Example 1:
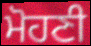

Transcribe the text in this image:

ਮੋਹਣੀ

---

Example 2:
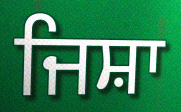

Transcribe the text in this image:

ਜਿਸ਼ਾ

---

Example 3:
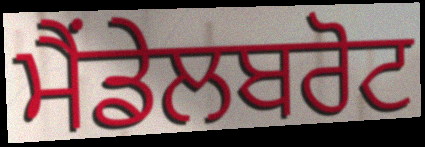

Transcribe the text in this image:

ਮੈਂਡੇਲਬਰੋਟ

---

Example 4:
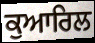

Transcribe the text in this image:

ਕੁਆਰਿਲ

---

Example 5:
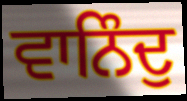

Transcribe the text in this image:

ਵਾਨਿੰਦੁ